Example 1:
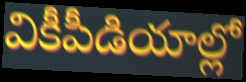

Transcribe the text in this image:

వికీపీడియాల్లో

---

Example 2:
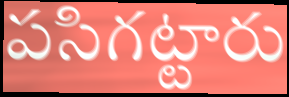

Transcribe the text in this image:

పసిగట్టారు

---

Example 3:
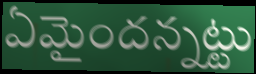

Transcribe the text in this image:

ఏమైందన్నట్టు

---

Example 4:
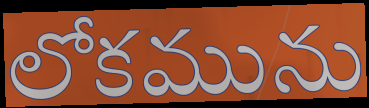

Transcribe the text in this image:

లోకమును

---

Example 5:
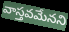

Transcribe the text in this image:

వాస్తవమేనని